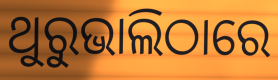
ଥୁରୁଭାଲିଠାରେ